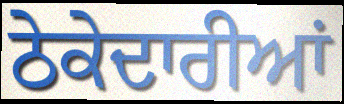
ਠੇਕੇਦਾਰੀਆਂ